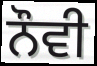
ਨੌਵੀ